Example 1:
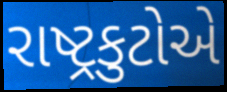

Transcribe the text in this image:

રાષ્ટ્રકુટોએ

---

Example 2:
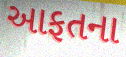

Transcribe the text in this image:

આફતના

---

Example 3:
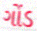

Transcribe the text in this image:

ગોંડ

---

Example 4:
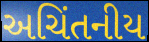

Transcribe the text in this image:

અચિંતનીય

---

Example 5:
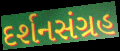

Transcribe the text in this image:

દર્શનસંગ્રહ